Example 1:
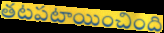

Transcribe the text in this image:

తటపటాయించింది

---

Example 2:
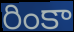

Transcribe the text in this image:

రింకా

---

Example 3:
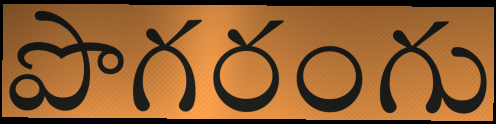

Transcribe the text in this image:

పొగరంగు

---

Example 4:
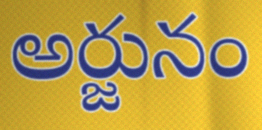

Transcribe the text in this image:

అర్జునం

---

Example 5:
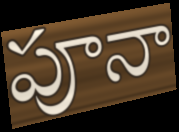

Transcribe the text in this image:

పూనా